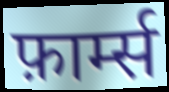
फ़ार्म्स